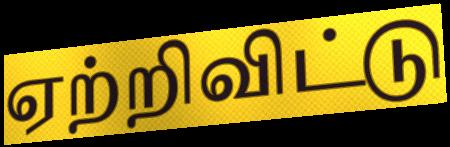
ஏற்றிவிட்டு